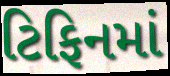
ટિફિનમાં